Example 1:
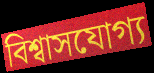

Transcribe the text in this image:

বিশ্বাসযোগ্য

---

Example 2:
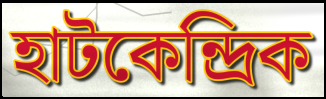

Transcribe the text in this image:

হাটকেন্দ্রিক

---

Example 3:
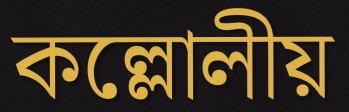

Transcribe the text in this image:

কল্লোলীয়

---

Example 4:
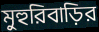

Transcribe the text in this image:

মুহুরিবাড়ির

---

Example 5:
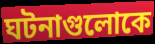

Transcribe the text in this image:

ঘটনাগুলোকে